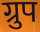
ग्रुप